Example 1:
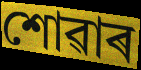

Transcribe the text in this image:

শোৱাৰ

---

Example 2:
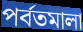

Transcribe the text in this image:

পৰ্বতমালা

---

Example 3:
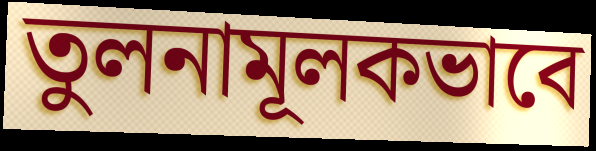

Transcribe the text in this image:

তুলনামূলকভাবে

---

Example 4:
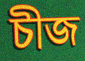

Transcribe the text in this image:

চীজ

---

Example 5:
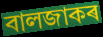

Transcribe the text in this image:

বালজাকৰ